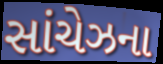
સાંચેઝના